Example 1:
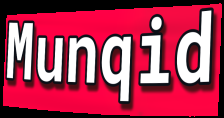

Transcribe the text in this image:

Munqid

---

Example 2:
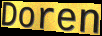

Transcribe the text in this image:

Doren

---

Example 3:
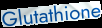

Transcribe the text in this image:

Glutathione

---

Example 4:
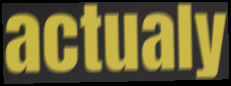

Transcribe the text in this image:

actualy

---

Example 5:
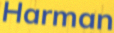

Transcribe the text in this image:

Harman